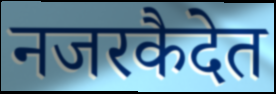
नजरकैदेत